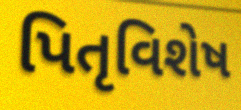
પિતૃવિશેષ